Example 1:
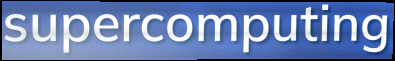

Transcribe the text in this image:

supercomputing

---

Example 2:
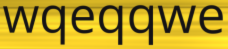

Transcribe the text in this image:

wqeqqwe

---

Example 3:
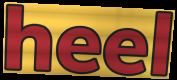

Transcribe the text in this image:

heel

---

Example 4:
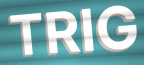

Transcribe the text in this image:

TRIG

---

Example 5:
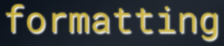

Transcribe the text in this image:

formatting